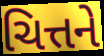
ચિત્તને